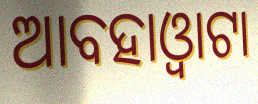
ଆବହାଓ୍ୱାଟା